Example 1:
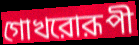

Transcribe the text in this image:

গোখরোরূপী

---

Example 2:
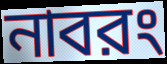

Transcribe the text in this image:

নাবরং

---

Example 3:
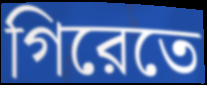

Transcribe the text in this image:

গিরেতে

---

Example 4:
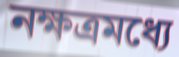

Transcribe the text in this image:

নক্ষত্রমধ্যে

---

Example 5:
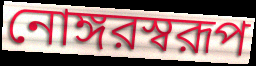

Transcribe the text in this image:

নোঙ্গরস্বরূপ